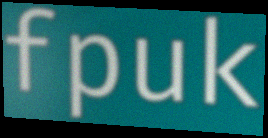
fpuk